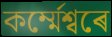
কৰ্ম্মেশ্বৰে